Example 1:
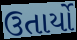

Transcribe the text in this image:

ઉતાર્યો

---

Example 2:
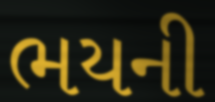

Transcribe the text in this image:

ભયની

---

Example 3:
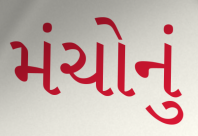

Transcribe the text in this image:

મંચોનું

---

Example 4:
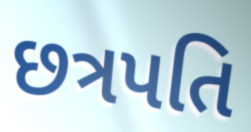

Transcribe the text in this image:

છત્રપતિ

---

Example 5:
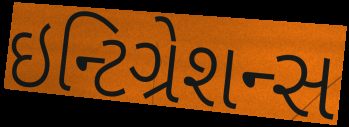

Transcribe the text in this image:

ઇન્ટિગ્રેશન્સ